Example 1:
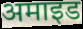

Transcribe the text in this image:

अमाइड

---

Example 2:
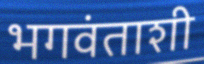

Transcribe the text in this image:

भगवंताशी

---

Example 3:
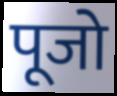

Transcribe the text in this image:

पूजो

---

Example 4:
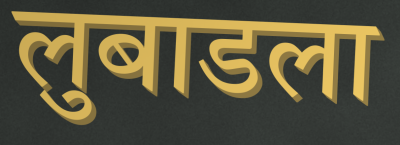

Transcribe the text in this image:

लुबाडला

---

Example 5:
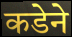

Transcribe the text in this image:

कडेने